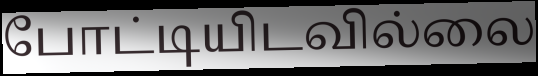
போட்டியிடவில்லை